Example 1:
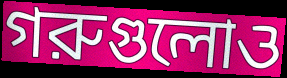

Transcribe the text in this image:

গরুগুলোও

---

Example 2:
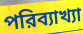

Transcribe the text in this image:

পরিব্যাখ্যা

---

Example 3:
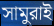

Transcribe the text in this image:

সামুরাই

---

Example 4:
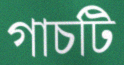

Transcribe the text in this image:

গাচটি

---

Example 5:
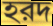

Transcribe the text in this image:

হরদ